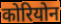
कोरियोन